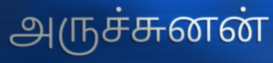
அருச்சுனன்